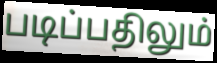
படிப்பதிலும்